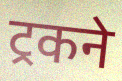
ट्रकने